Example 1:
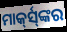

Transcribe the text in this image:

ମାର୍କ୍‍ସ୍‍ଙ୍କର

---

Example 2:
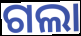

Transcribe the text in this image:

ଗଲା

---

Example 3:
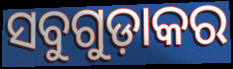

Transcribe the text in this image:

ସବୁଗୁଡ଼ାକର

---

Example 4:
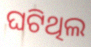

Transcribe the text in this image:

ଘଟିଥିଲ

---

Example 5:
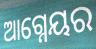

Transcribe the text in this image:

ଆଗ୍ନେୟର